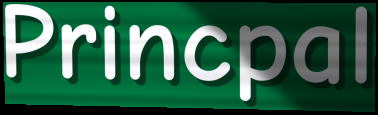
Princpal